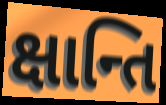
ક્ષાન્તિ